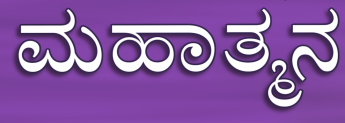
ಮಹಾತ್ಮನ